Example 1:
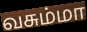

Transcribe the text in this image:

வசும்மா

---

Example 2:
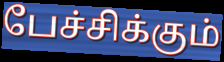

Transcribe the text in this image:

பேச்சிக்கும்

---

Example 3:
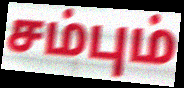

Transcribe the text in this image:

சம்பும்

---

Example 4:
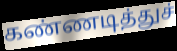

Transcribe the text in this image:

கண்ணடித்துச்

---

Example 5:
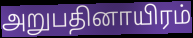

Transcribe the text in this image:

அறுபதினாயிரம்